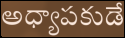
అధ్యాపకుడే